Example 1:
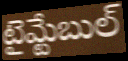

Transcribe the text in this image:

టైమ్టేబుల్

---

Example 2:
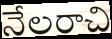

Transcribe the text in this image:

నేలరాచి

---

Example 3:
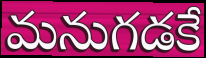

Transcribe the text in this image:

మనుగడకే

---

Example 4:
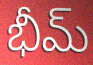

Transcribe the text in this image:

భీమ్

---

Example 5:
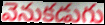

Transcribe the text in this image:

వెనుకడుగు